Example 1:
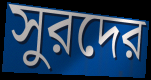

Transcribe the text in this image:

সুরদের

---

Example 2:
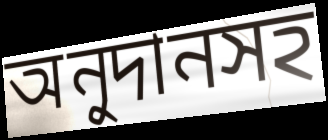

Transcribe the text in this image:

অনুদানসহ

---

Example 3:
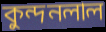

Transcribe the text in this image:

কুন্দনলাল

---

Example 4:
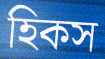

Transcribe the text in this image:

হিকস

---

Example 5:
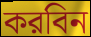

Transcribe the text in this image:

করবিন